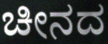
ಚೀನದ